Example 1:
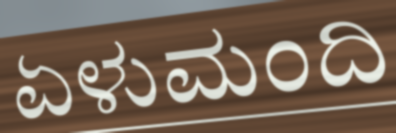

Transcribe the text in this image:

ಏಳುಮಂದಿ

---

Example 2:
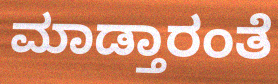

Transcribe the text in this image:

ಮಾಡ್ತಾರಂತೆ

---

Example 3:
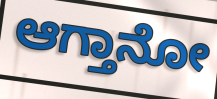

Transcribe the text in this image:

ಆಗ್ತಾನೋ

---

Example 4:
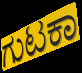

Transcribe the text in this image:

ಗುಟಕಾ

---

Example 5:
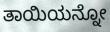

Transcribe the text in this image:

ತಾಯಿಯನ್ನೋ